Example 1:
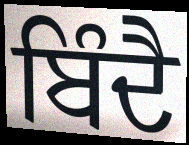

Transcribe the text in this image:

ਬਿੰਦੈ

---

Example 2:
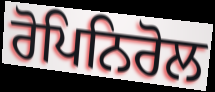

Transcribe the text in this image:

ਰੋਪਿਨਿਰੋਲ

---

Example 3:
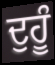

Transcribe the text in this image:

ਦੁਹੂੰ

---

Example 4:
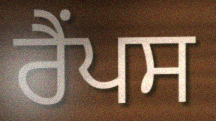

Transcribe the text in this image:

ਰੈਂਪਸ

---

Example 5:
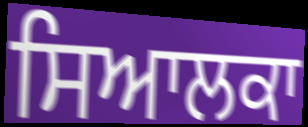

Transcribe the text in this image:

ਸਿਆਲਕਾ